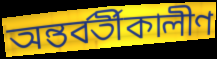
অন্তর্বর্তীকালীণ